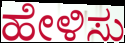
ಹೇಳಿಸು